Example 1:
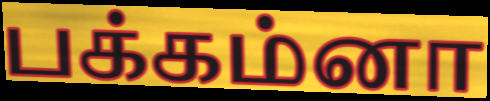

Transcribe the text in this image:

பக்கம்னா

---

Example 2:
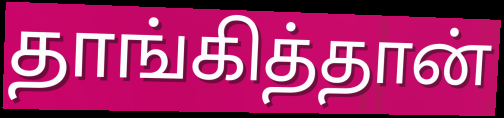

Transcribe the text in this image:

தாங்கித்தான்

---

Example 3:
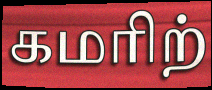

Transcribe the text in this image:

கமரிற்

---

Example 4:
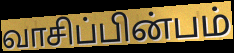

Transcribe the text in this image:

வாசிப்பின்பம்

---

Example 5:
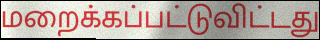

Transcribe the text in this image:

மறைக்கப்பட்டுவிட்டது